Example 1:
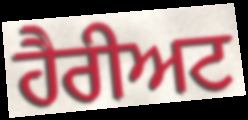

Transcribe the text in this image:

ਹੈਰੀਅਟ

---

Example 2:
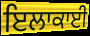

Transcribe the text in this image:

ਇਲਾਕਾਈ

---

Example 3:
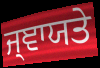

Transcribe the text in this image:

ਜ੍ਞਾਯਤੇ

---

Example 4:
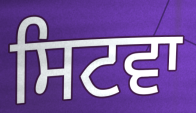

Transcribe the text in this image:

ਸਿਟਵਾ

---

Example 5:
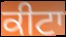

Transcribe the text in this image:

ਕੀਟਾ